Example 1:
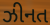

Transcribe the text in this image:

ઝીનત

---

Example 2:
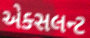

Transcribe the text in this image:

એક્સલન્ટ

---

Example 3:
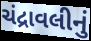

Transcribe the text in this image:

ચંદ્રાવલીનું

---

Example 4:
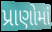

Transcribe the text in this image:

પ્રાણોમાં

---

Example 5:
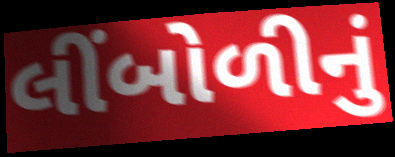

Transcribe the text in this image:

લીંબોળીનું